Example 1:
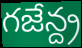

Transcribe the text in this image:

గజేన్ద్ర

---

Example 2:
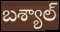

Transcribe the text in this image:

బశ్యాల్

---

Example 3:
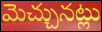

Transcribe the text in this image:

మెచ్చునట్లు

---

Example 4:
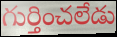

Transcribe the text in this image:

గుర్తించలేడు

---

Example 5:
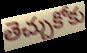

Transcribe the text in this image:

తెచ్చుకోకు